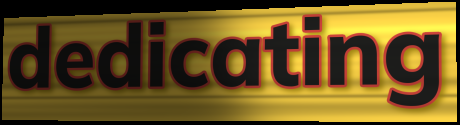
dedicating